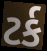
ટર્ક